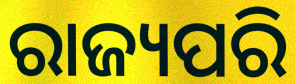
ରାଜ୍ୟପରି